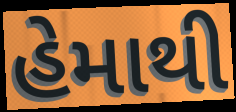
હેમાથી